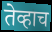
तेव्हाच